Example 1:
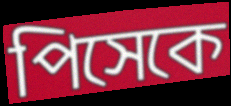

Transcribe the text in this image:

পিসেকে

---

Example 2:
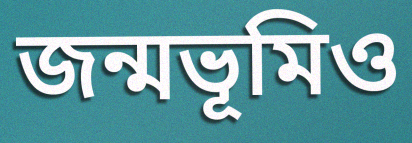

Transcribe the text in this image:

জন্মভূমিও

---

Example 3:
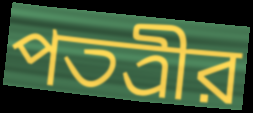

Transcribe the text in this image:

পতত্রীর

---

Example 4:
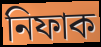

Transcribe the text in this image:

নিফাক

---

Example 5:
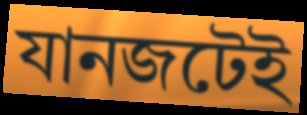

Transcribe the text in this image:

যানজটেই